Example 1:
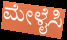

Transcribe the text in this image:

ಮೇಳೈಸಿ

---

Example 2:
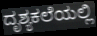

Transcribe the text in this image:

ದೃಶ್ಯಕಲೆಯಲ್ಲಿ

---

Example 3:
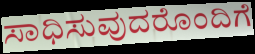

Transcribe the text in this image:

ಸಾಧಿಸುವುದರೊಂದಿಗೆ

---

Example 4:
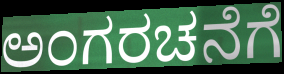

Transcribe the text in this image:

ಅಂಗರಚನೆಗೆ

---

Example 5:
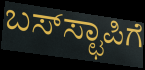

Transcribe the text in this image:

ಬಸ್‌ಸ್ಟಾಪಿಗೆ